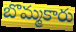
బొమ్మకారు